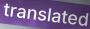
translated